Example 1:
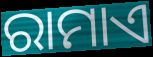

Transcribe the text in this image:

ରାମାଏ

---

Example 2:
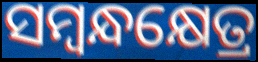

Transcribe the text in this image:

ସମ୍ବନ୍ଧକ୍ଷେତ୍ର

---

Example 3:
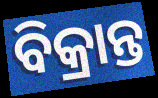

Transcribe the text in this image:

ବିକ୍ରାନ୍ତ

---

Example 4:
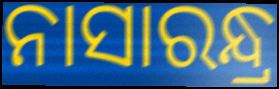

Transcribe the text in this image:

ନାସାରନ୍ଧ୍ର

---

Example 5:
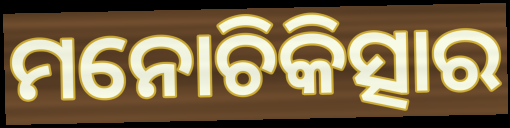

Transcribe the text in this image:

ମନୋଚିକିତ୍ସାର